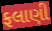
ફલાણી